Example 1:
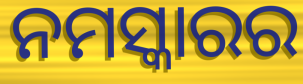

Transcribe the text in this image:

ନମସ୍କାରର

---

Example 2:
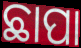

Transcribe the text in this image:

ଛାପା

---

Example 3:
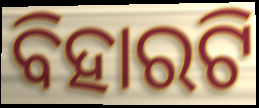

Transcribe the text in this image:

ବିହାରଟି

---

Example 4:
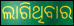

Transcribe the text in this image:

ଲାଗିଥିବାର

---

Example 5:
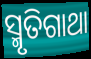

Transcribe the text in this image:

ସ୍ମୃତିଗାଥା